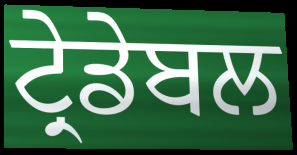
ਟ੍ਰੇਡੇਬਲ